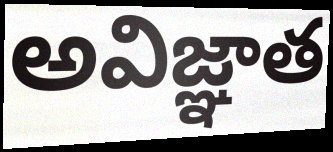
అవిజ్ఞాత